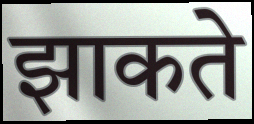
झाकते